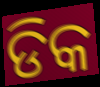
ଡିକ